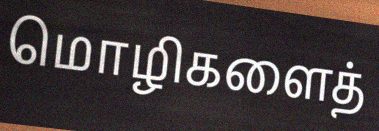
மொழிகளைத்